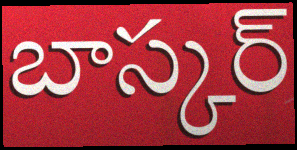
బాస్కర్